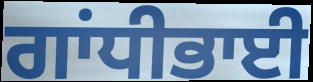
ਗਾਂਧੀਭਾਈ